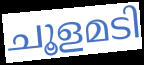
ചൂളമടി